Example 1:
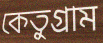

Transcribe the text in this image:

কেতুগ্রাম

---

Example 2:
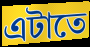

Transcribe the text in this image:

এটাতে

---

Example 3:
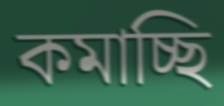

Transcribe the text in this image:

কমাচ্ছি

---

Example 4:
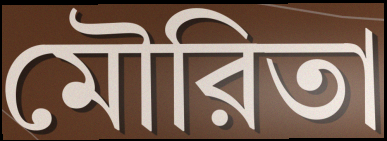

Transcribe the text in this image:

মৌরিতা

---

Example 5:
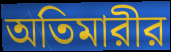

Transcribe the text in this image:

অতিমারীর